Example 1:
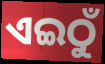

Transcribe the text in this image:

ଏଇଠୁଁ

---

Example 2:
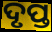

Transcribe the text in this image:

ଦୃପ୍ତ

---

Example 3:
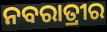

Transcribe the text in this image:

ନବରାତ୍ରୀର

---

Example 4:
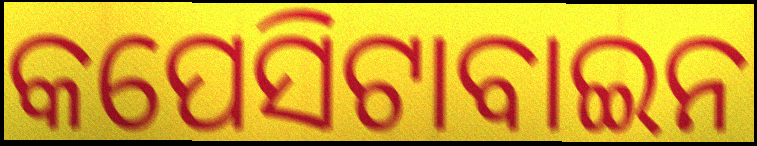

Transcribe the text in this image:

କପେସିଟାବାଇନ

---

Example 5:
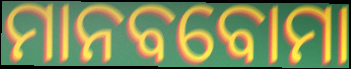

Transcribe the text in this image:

ମାନବବୋମା